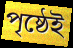
পৃষ্ঠেই